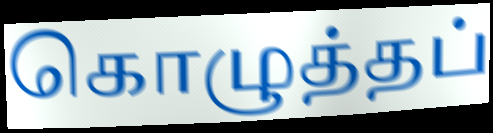
கொழுத்தப்